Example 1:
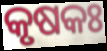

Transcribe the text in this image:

କୃଷକଃ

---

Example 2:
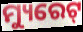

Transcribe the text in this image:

ମ୍ୟୁରେଟ୍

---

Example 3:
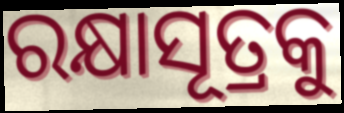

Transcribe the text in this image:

ରକ୍ଷାସୂତ୍ରକୁ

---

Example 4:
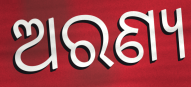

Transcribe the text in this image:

ଅରଣ୍ୟ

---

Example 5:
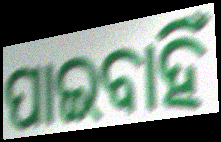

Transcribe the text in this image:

ପାଇବାହିଁ